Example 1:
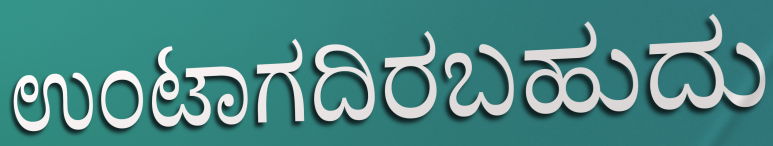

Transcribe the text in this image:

ಉಂಟಾಗದಿರಬಹುದು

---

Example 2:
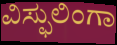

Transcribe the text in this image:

ವಿಸ್ಫುಲಿಂಗಾ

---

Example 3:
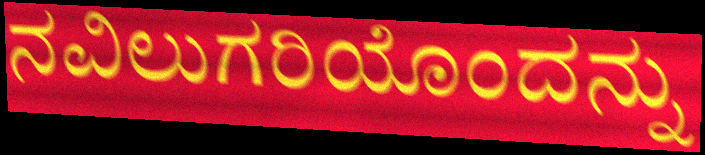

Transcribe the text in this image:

ನವಿಲುಗರಿಯೊಂದನ್ನು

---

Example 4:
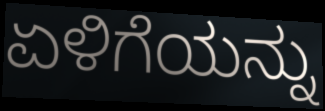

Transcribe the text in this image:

ಏಳಿಗೆಯನ್ನು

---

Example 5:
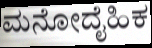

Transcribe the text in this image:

ಮನೋದೈಹಿಕ